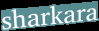
sharkara